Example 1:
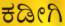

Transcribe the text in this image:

ಕಡೀಗಿ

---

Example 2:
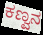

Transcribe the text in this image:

ಕಣ್ವನ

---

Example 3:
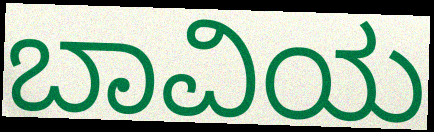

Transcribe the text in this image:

ಬಾವಿಯ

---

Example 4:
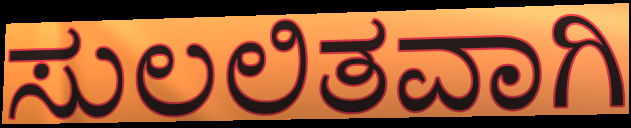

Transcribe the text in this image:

ಸುಲಲಿತವಾಗಿ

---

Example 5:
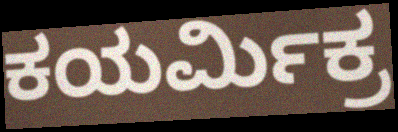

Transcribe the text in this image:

ಕಯರ್ಮಿಕ್ರ